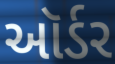
ઑર્ડર